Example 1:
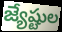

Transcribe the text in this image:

జ్యేష్టుల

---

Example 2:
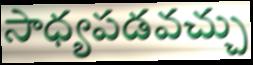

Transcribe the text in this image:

సాధ్యపడవచ్చు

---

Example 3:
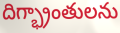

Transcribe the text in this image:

దిగ్భ్రాంతులను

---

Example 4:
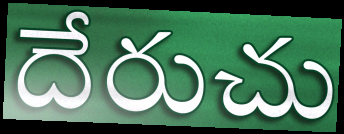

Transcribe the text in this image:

దేరుచు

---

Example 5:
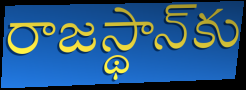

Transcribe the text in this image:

రాజస్థాన్‌కు